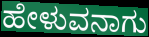
ಹೇಳುವನಾಗು